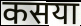
कसया